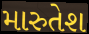
મારુતેશ